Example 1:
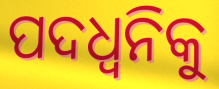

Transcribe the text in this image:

ପଦଧ୍ୱନିକୁ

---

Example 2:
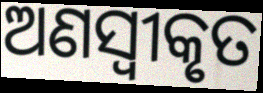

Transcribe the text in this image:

ଅଣସ୍ୱୀକୃତ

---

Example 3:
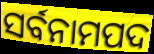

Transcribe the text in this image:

ସର୍ବନାମପଦ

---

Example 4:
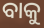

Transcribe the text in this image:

ବାକୁ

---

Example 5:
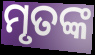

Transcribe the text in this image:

ମୃତଙ୍କ